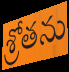
శ్రోతను